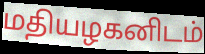
மதியழகனிடம்